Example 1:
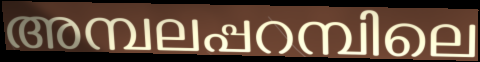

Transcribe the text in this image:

അമ്പലപ്പറമ്പിലെ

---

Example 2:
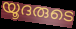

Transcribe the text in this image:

യൂദരുടെ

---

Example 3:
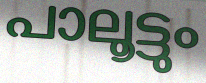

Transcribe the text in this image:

പാലൂട്ടും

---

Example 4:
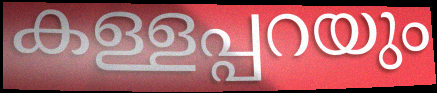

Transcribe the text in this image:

കള്ളപ്പറയും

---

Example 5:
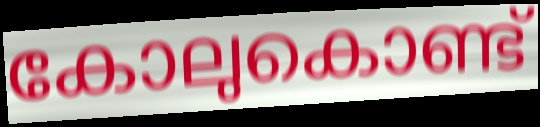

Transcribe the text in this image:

കോലുകൊണ്ട്